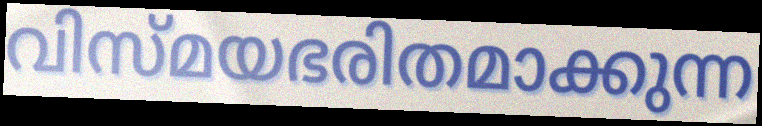
വിസ്മയഭരിതമാക്കുന്ന